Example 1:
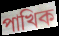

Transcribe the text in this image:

পাখিক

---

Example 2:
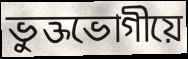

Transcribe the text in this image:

ভুক্তভোগীয়ে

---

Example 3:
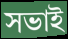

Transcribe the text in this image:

সভাই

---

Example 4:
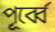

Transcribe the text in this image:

পূৰ্ব্বে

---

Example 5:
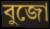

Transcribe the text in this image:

বুজো